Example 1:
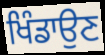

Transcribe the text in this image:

ਖਿੰਡਾਉਣ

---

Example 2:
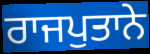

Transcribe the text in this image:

ਰਾਜਪੁਤਾਨੇ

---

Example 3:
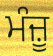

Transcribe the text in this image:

ਮੰਜ਼ੂ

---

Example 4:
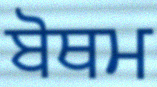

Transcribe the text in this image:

ਬੋਥਮ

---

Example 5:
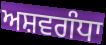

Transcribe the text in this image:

ਅਸ਼ਵਗੰਧਾ